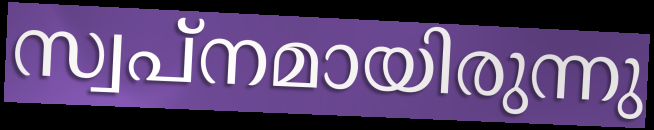
സ്വപ്നമായിരുന്നു